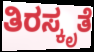
ತಿರಸ್ಕೃತೆ